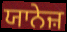
ਯਾਨੇਜ਼